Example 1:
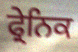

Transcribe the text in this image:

ਫ੍ਰੇਨਿਕ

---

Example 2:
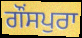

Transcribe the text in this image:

ਗੌਂਸਪੁਰਾ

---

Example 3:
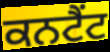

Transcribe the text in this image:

ਕਨਟੈਂਟ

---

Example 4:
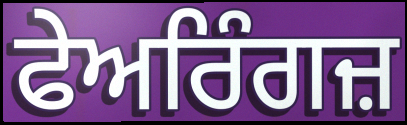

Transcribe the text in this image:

ਫੇਅਰਿੰਗਜ਼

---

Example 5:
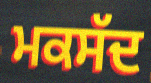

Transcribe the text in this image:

ਮਕਸੱਦ